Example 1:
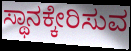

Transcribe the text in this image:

ಸ್ಥಾನಕ್ಕೇರಿಸುವ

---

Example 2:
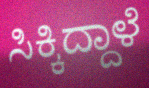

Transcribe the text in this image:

ಸಿಕ್ಕಿದ್ದಾಳೆ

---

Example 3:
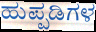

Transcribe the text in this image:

ಹುಪ್ಪಡಿಗಳ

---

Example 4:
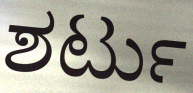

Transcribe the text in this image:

ಶರ್ಟು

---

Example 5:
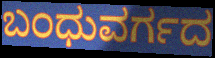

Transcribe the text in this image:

ಬಂಧುವರ್ಗದ